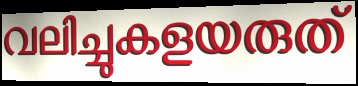
വലിച്ചുകളയരുത്